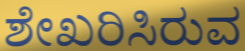
ಶೇಖರಿಸಿರುವ